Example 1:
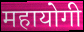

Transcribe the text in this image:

महायोगी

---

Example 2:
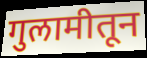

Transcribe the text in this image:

गुलामीतून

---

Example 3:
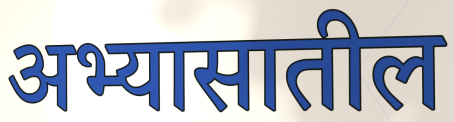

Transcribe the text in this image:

अभ्यासातील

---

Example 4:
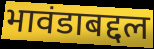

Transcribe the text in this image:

भावंडाबद्दल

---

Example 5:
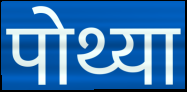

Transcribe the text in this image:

पोथ्या